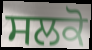
ਸਲਕੋ